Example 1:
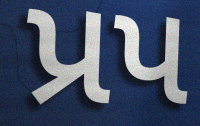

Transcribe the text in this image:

પ્રપ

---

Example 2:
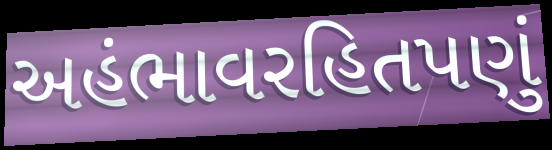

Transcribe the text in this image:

અહંભાવરહિતપણું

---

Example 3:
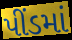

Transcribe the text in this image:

પીંડમાં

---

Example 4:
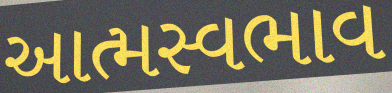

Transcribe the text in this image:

આત્મસ્વભાવ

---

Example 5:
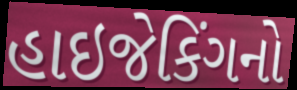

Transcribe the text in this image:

હાઇજેકિંગનો